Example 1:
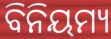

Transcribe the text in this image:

ବିନିୟମ୍ୟ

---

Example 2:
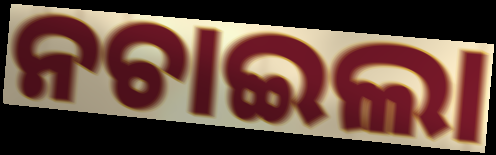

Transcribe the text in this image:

ନଚାଇଲା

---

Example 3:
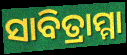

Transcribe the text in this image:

ସାବିତ୍ରାମ୍ମା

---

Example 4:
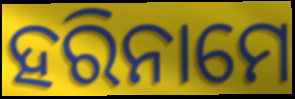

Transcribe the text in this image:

ହରିନାମେ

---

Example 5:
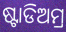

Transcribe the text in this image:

ଷ୍ଟାଡିଅମ୍ର